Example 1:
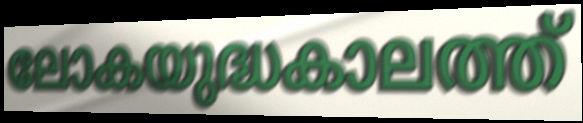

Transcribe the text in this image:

ലോകയുദ്ധകാലത്ത്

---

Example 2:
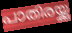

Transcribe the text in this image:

പാതിരയ്ക്കു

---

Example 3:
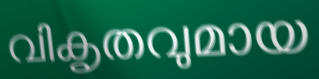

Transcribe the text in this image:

വികൃതവുമായ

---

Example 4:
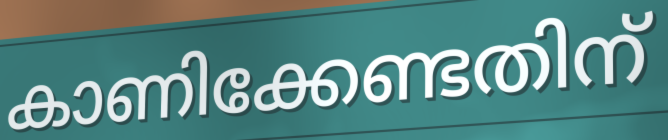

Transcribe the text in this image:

കാണിക്കേണ്ടതിന്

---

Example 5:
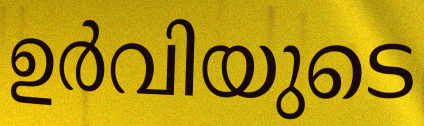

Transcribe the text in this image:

ഉർവിയുടെ